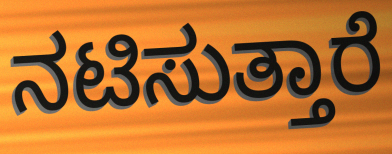
ನಟಿಸುತ್ತಾರೆ